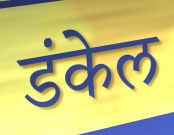
डंकेल